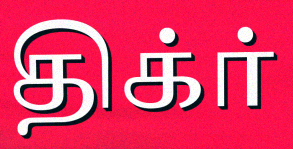
திக்ர்